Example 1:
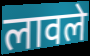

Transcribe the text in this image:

लावले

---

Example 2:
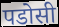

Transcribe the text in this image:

पडोसी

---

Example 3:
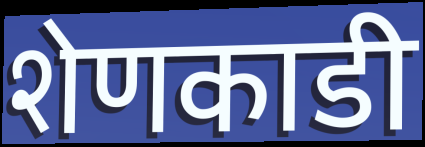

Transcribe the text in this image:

शेणकाडी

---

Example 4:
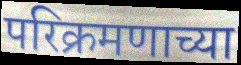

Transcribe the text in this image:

परिक्रमणाच्या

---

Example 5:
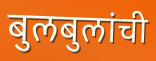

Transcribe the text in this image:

बुलबुलांची